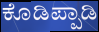
ಕೊಡಿಪ್ಪಾಡಿ